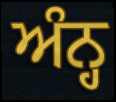
ਅੰਨ੍ਹ